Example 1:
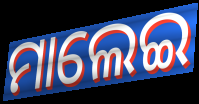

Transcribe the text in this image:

ମାଲେଇ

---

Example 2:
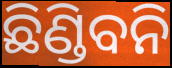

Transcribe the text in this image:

ଛିଣ୍ଡିବନି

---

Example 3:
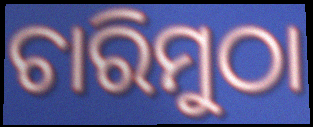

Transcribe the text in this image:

ଚାରିମୁଠା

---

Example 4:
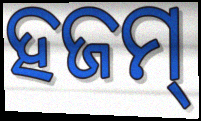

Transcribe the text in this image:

ହଜମ୍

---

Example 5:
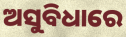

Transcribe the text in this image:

ଅସୁବିଧାରେ